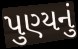
પુણ્યનું